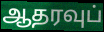
ஆதரவுப்